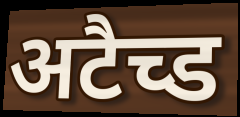
अटैच्ड